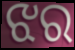
ଝର